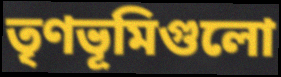
তৃণভূমিগুলো